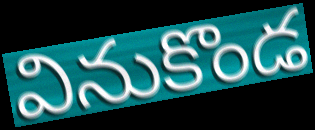
వినుకొండ